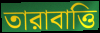
তারাবাত্তি